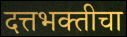
दत्तभक्तीचा